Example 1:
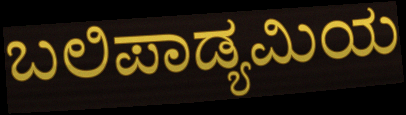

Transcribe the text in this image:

ಬಲಿಪಾಡ್ಯಮಿಯ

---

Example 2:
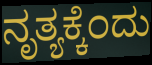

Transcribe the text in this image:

ನೃತ್ಯಕ್ಕೆಂದು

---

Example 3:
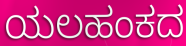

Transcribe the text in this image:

ಯಲಹಂಕದ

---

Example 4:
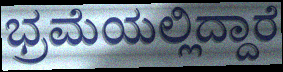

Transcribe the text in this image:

ಭ್ರಮೆಯಲ್ಲಿದ್ದಾರೆ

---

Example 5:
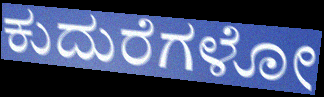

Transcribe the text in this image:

ಕುದುರೆಗಳೋ